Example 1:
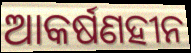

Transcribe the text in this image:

ଆକର୍ଷଣହୀନ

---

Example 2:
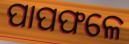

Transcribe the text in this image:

ପାପଫଳେ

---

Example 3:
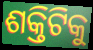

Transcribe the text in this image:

ଶକ୍ତିଟିକୁ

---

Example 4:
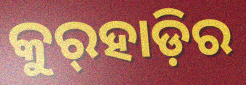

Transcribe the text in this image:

କୁର୍‍ହାଡ଼ିର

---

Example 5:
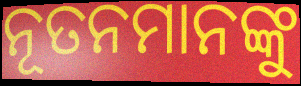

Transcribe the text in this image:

ନୂତନମାନଙ୍କୁ